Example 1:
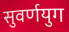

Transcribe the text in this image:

सुवर्णयुग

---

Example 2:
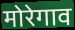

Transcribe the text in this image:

मोरेगाव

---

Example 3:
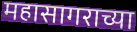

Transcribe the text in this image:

महासागराच्या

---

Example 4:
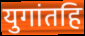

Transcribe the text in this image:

युगांतहि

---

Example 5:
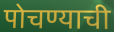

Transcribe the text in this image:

पोचण्याची